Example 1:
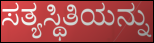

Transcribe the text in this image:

ಸತ್ಯಸ್ಥಿತಿಯನ್ನು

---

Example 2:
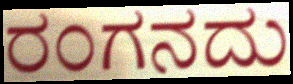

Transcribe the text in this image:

ರಂಗನದು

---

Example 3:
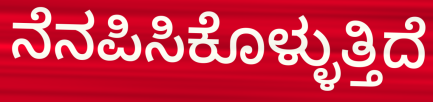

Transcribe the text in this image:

ನೆನಪಿಸಿಕೊಳ್ಳುತ್ತಿದೆ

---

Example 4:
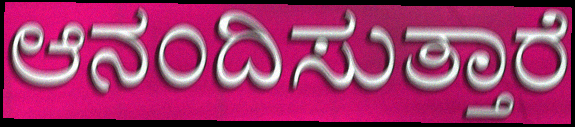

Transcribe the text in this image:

ಆನಂದಿಸುತ್ತಾರೆ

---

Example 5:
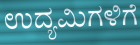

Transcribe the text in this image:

ಉದ್ಯಮಿಗಳಿಗೆ